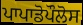
ਪਾਪਾਡੋਪੌਲੋਸ